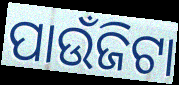
ପାଉଁଜିଟା